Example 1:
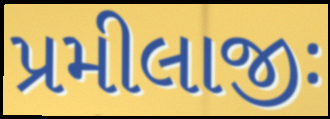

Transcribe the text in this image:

પ્રમીલાજીઃ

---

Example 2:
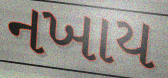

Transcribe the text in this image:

નખાય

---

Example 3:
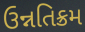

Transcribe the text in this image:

ઉન્નતિક્રમ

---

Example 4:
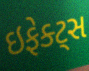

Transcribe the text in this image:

ઇફેક્ટ્સ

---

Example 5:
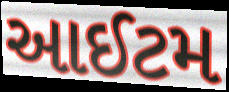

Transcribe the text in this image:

આઈટમ